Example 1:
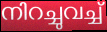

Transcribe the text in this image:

നിറച്ചുവച്ച്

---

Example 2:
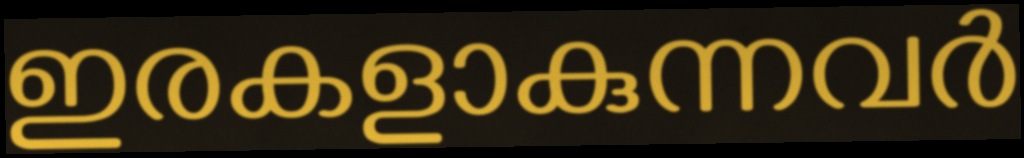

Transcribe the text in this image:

ഇരകളാകുന്നവർ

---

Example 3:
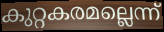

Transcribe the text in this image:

കുറ്റകരമല്ലെന്ന്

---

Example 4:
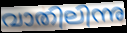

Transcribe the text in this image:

വാതിലിന്നു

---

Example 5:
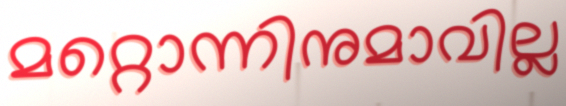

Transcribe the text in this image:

മറ്റൊന്നിനുമാവില്ല